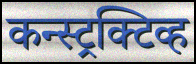
कन्स्ट्रक्टिव्ह